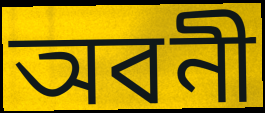
অবনী